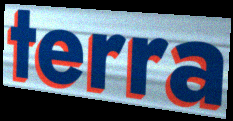
terra